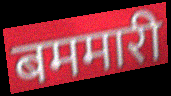
बममारी